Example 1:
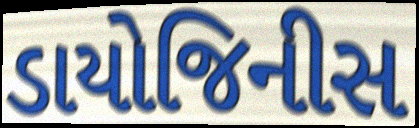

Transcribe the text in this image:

ડાયોજિનીસ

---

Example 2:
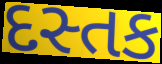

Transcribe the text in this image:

દસ્તક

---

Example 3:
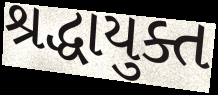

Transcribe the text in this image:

શ્રદ્ધાયુક્ત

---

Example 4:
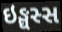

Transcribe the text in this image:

ઇઙ્ઘસ્સ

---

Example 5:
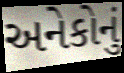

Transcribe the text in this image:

અનેકોનું